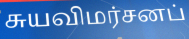
சுயவிமர்சனப்